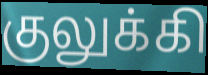
குலுக்கி